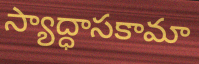
స్యాద్ధాసకామా